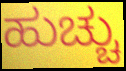
ಹುಚ್ಚು